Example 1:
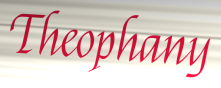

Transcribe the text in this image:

Theophany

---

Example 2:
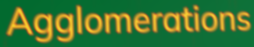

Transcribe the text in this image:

Agglomerations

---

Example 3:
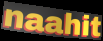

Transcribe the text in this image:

naahit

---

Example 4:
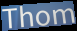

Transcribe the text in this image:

Thom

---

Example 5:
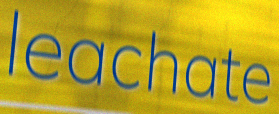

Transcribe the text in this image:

leachate